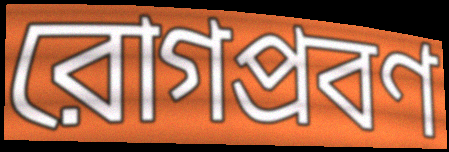
রোগপ্রবণ